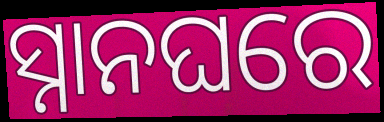
ସ୍ନାନଘରେ